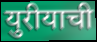
युरीयाची